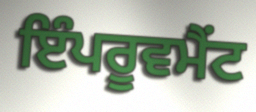
ਇੰਪਰੂਵਮੈਂਟ